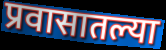
प्रवासातल्या